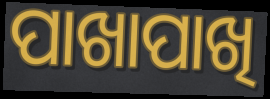
ପାଖାପାଖି